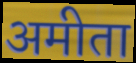
अमीता